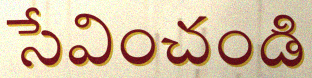
సేవించండి